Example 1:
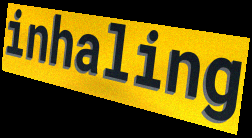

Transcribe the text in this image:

inhaling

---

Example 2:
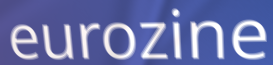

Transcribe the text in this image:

eurozine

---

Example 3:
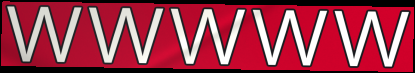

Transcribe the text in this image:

wwwww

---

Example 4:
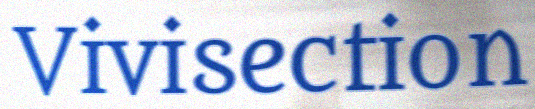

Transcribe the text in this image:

Vivisection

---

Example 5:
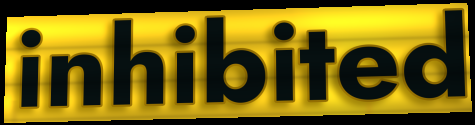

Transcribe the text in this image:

inhibited